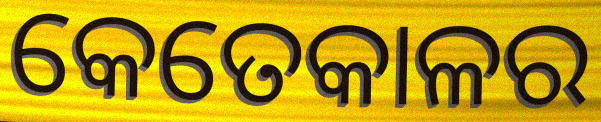
କେତେକାଳର